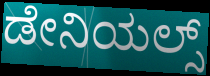
ಡೇನಿಯಲ್ಸ್